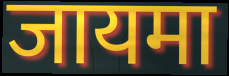
जायमा